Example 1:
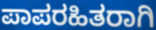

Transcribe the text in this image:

ಪಾಪರಹಿತರಾಗಿ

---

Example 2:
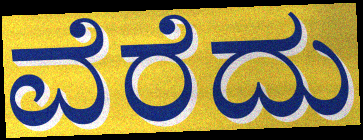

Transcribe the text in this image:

ವೆರೆದು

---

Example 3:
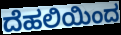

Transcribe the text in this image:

ದೆಹಲಿಯಿಂದ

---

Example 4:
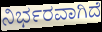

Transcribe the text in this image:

ನಿರ್ಭರವಾಗಿದೆ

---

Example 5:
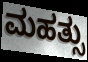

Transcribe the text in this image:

ಮಹತ್ಸು